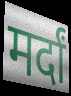
मर्दां